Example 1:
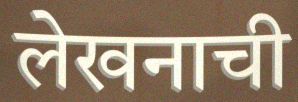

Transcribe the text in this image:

लेखनाची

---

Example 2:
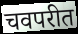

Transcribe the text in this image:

चवपरीत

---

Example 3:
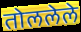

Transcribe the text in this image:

तोललेले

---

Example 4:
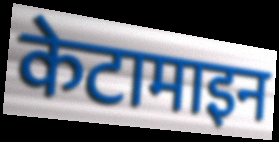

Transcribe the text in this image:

केटामाइन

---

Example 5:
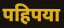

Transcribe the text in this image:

पहिपया